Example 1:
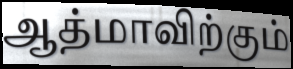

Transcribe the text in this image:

ஆத்மாவிற்கும்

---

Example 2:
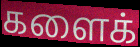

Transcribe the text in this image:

களைக்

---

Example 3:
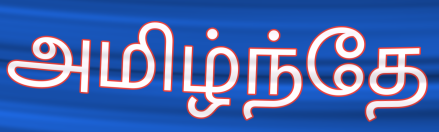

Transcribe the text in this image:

அமிழ்ந்தே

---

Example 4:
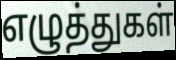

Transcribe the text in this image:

எழுத்துகள்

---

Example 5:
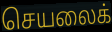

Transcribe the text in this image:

செயலைக்